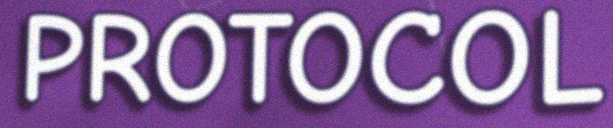
PROTOCOL